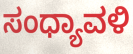
ಸಂಧ್ಯಾವಳಿ